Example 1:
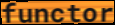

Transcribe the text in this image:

functor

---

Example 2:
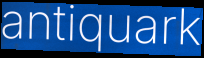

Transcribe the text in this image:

antiquark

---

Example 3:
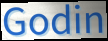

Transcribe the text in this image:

Godin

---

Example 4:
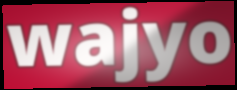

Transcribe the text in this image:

wajyo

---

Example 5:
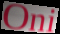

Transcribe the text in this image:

Oni